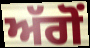
ਅੱਗੋਂ